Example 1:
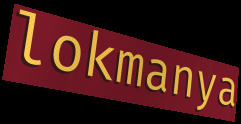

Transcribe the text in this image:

lokmanya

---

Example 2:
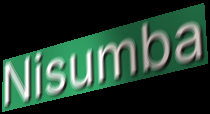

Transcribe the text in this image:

Nisumba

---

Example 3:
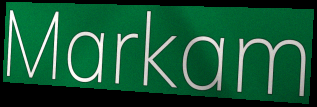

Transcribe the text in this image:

Markam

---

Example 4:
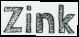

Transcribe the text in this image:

Zink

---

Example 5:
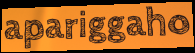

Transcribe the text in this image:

apariggaho